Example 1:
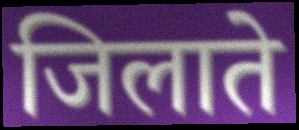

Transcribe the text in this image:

जिलाते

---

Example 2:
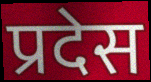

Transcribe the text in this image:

प्रदेस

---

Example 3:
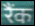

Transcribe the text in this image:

रैंक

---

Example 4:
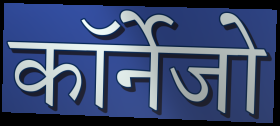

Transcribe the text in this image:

कॉर्नेजो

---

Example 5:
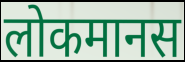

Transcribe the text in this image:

लोकमानस